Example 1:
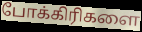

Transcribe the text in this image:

போக்கிரிகளை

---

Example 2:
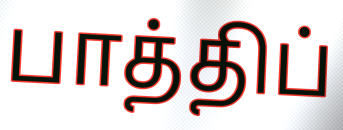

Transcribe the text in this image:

பாத்திப்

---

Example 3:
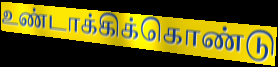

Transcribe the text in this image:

உண்டாக்கிக்கொண்டு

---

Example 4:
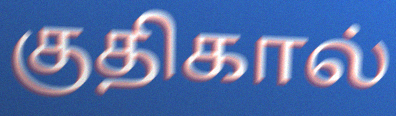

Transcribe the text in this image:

குதிகால்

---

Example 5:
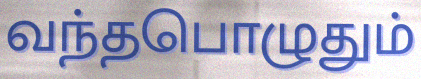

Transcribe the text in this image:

வந்தபொழுதும்